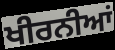
ਖੀਰਨੀਆਂ